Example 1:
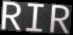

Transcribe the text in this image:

RIR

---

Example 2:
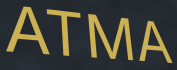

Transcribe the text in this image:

ATMA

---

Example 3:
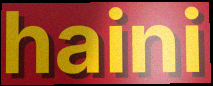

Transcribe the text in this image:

haini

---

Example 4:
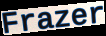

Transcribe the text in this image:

Frazer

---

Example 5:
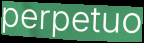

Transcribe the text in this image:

perpetuo